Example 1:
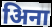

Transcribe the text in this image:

अिना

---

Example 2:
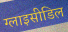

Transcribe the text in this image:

ग्लाइसीडिल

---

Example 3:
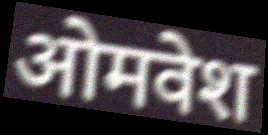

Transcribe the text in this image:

ओमवेश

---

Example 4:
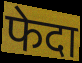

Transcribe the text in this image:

फेदा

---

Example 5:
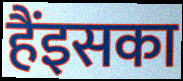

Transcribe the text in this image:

हैंइसका